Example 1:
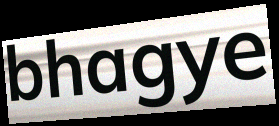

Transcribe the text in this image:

bhagye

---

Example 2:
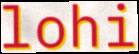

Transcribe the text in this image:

lohi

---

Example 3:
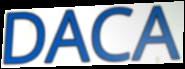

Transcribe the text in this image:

DACA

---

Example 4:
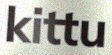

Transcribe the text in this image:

kittu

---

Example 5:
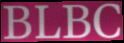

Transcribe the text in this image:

BLBC